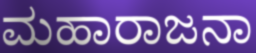
ಮಹಾರಾಜನಾ